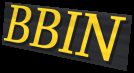
BBIN